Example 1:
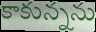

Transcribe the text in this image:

కాకున్నను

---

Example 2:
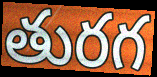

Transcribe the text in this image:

తురగ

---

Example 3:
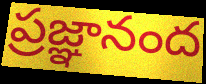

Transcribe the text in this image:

ప్రజ్ఞానంద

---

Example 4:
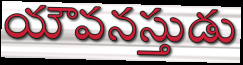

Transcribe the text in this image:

యౌవనస్తుడు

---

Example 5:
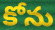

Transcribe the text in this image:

కోను